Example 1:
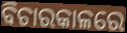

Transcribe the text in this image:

ବିଚାରକାଳରେ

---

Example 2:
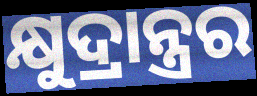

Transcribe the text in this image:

କ୍ଷୁଦ୍ରାନ୍ତ୍ରର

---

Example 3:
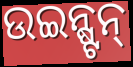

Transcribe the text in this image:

ଉଇନ୍ଷ୍ଟନ୍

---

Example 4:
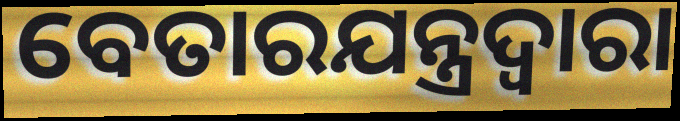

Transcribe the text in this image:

ବେତାରଯନ୍ତ୍ରଦ୍ୱାରା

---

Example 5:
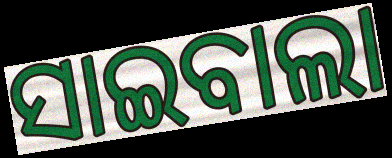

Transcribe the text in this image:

ସାଇବାଲା